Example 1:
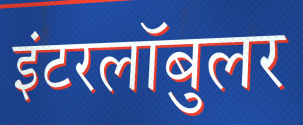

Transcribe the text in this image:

इंटरलॉबुलर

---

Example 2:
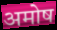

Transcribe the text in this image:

अमोष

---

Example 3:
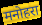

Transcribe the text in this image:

मनोहरा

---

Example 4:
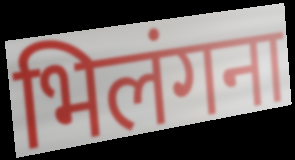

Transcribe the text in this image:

भिलंगना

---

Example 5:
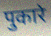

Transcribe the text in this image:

पुकारे